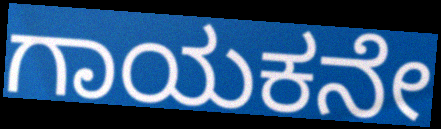
ಗಾಯಕನೇ